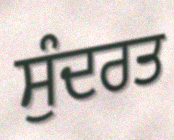
ਸੁੰਦਰਤ